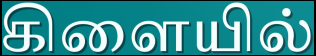
கிளையில்